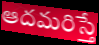
ఆదమరిస్తే